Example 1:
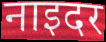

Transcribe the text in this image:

नाइदर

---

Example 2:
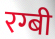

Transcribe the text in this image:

रग्‍बी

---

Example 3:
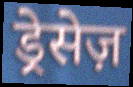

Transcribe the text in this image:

ड्रेसेज़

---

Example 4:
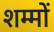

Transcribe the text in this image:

शम्मों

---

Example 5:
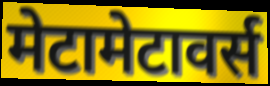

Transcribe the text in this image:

मेटामेटावर्स